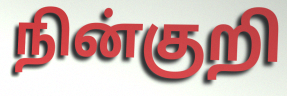
நின்குறி